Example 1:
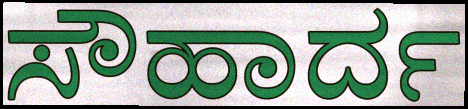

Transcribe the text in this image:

ಸೌಹಾರ್ದ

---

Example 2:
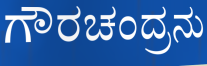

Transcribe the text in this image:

ಗೌರಚಂದ್ರನು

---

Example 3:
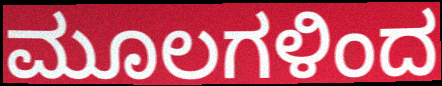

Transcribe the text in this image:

ಮೂಲಗಳಿಂದ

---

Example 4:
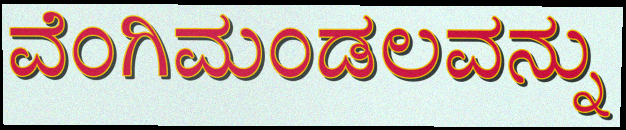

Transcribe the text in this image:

ವೆಂಗಿಮಂಡಲವನ್ನು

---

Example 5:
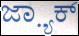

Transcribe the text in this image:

ಜ಼್ಯಾಕ್